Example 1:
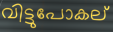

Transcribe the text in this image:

വിട്ടുപോകല്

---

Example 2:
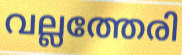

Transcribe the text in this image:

വല്ലത്തേരി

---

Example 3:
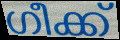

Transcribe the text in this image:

ഗീക്ക്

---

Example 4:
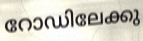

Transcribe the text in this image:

റോഡിലേക്കു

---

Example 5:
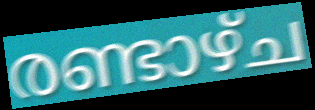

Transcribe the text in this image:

രണ്ടാഴ്ച